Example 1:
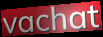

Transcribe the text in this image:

vachat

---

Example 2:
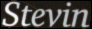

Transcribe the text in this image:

Stevin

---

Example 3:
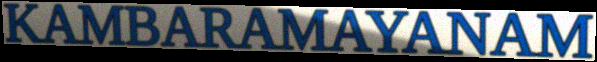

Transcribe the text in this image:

KAMBARAMAYANAM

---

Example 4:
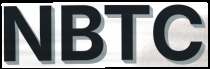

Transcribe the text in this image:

NBTC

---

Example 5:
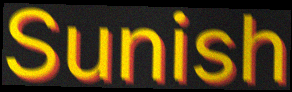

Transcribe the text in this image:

Sunish